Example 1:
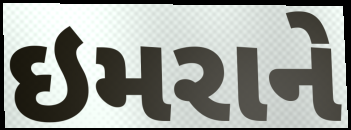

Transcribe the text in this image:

ઇમરાને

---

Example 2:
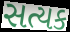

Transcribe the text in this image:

સત્યક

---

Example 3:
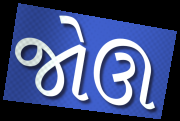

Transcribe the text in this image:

જોઊ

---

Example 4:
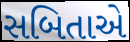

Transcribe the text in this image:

સબિતાએ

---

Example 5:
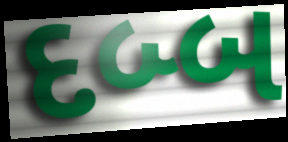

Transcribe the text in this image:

દબ્બ